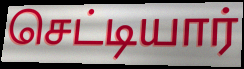
செட்டியார்